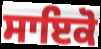
ਸਾਇਕੋ